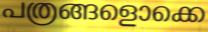
പത്രങ്ങളൊക്കെ